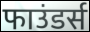
फाउंडर्स